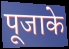
पूजाके